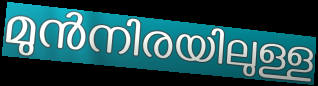
മുൻനിരയിലുള്ള